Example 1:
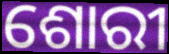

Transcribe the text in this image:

ଶୋରୀ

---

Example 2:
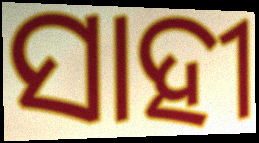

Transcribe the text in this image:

ସାହୀ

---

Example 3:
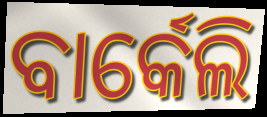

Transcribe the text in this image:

ବାର୍କେଲି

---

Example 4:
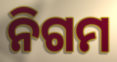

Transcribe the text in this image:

ନିଗମ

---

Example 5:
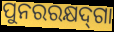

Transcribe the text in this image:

ପୁନରରକ୍ଷଦ୍‌ଗା